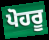
ਪੋਹਰੂ